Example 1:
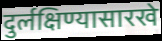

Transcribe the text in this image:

दुर्लक्षिण्यासारखे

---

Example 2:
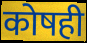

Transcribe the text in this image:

कोषही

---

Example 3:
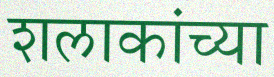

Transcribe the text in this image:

शलाकांच्या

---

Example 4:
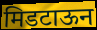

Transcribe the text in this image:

मिडटाऊन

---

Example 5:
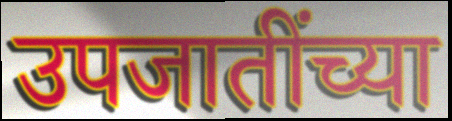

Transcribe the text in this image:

उपजातींच्या